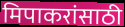
मिपाकरांसाठी